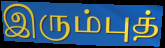
இரும்புத்